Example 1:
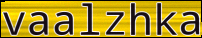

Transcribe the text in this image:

vaalzhka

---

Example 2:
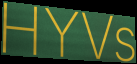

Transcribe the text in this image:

HYVs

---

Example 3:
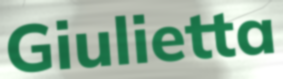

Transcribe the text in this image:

Giulietta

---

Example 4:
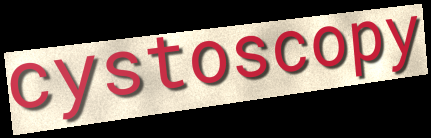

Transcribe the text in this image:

cystoscopy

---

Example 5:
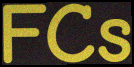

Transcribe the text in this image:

FCs